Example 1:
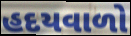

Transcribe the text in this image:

હદયવાળો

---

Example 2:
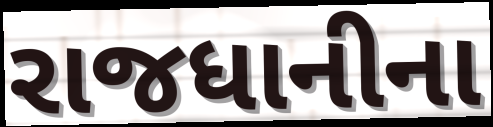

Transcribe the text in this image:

રાજધાનીના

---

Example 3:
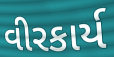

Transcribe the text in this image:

વીરકાર્ય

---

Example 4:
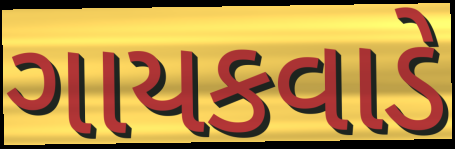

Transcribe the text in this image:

ગાયકવાડે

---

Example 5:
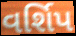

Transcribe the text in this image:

વર્શિપ